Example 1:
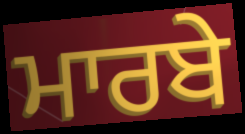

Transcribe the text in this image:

ਮਾਰਬੇ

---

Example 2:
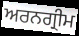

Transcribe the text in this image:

ਅਰਨਗ੍ਰੀਮ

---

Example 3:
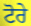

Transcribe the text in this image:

ਟੋਰੇ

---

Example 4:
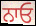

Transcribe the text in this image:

ਨਾਓ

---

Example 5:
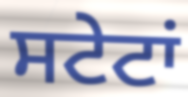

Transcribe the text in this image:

ਸਟੇਟਾਂ